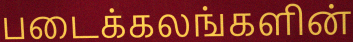
படைக்கலங்களின்